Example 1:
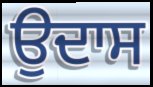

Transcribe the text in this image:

ਉਦਾਸ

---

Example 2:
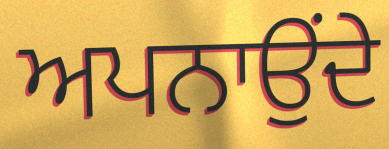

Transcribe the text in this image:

ਅਪਨਾਉਂਦੇ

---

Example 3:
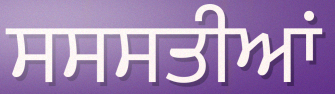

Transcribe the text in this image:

ਸਸਸਤੀਆਂ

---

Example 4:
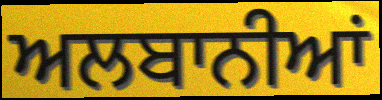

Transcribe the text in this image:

ਅਲਬਾਨੀਆਂ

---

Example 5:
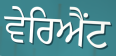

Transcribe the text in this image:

ਵੇਰਿਐਂਟ